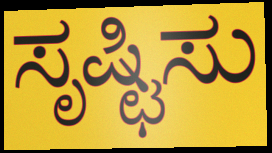
ಸೃಷ್ಟಿಸು